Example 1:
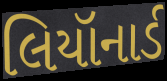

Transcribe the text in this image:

લિયૉનાર્ડ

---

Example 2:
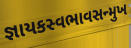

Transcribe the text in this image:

જ્ઞાયકસ્વભાવસન્મુખ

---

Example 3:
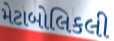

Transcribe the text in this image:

મેટાબોલિકલી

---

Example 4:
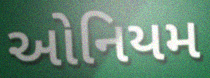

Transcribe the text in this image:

ઓનિયમ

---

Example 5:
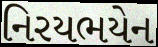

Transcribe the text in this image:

નિરયભયેન